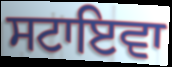
ਸਟਾਇਵਾ